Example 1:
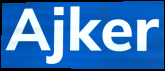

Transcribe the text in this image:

Ajker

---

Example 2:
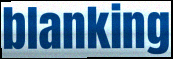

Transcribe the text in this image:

blanking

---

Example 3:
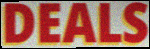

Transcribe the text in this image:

DEALS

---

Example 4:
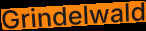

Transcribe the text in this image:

Grindelwald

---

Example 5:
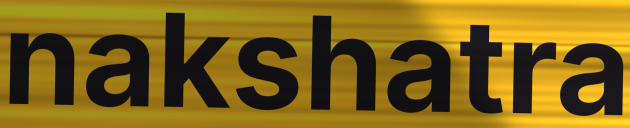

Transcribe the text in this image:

nakshatra